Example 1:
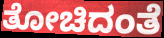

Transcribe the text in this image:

ತೋಚಿದಂತೆ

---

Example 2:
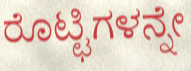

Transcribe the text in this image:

ರೊಟ್ಟಿಗಳನ್ನೇ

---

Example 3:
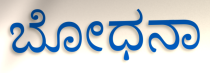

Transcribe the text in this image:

ಬೋಧನಾ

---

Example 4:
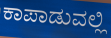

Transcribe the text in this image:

ಕಾಪಾಡುವಲ್ಲಿ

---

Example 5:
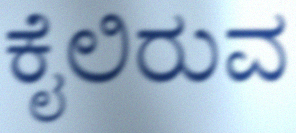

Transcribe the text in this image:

ಕೈಲಿರುವ